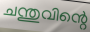
ചന്തുവിന്റെ